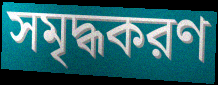
সমৃদ্ধকরণ